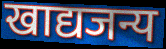
खाद्यजन्य